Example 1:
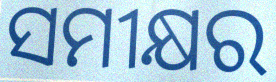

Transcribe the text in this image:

ସମୀକ୍ଷର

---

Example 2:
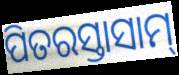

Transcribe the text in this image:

ପିତରସ୍ତାସାମ୍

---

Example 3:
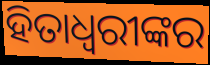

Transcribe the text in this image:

ହିତାଧ୍ଵରୀଙ୍କର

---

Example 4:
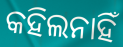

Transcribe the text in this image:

କହିଲନାହିଁ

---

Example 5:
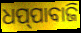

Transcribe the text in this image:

ଧପ୍‌ପାବାଜି